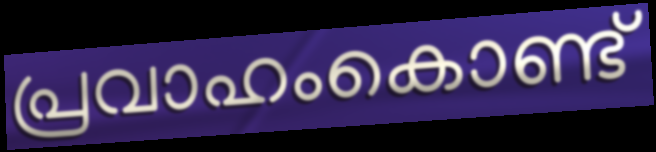
പ്രവാഹംകൊണ്ട്